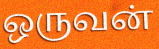
ஒருவன்